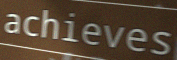
achieves